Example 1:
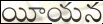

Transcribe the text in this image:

యీయన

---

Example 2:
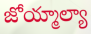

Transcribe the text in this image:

జోయ్మాల్యా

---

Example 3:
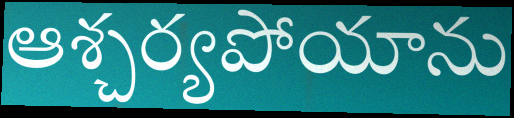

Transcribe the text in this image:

ఆశ్చర్యపోయాను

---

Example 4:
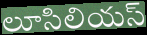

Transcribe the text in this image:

లూసిలియస్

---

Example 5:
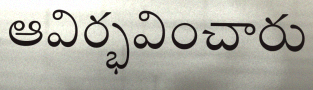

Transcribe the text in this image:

ఆవిర్భవించారు